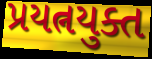
પ્રયત્નયુક્ત